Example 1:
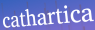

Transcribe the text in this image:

cathartica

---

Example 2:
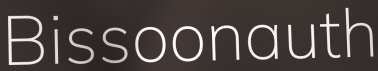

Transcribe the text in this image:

Bissoonauth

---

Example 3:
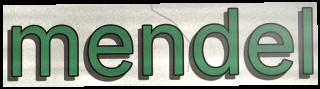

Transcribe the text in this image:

mendel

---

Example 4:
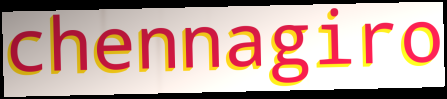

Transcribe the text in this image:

chennagiro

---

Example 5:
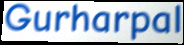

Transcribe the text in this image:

Gurharpal